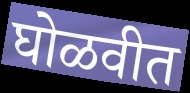
घोळवीत